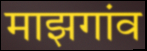
माझगांव